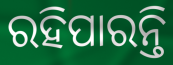
ରହିପାରନ୍ତି